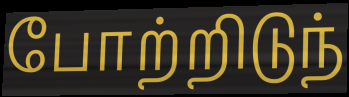
போற்றிடுந்